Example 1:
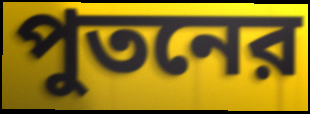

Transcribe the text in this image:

পুতনের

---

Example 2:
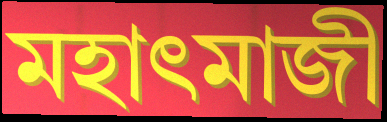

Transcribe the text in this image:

মহাৎমাজী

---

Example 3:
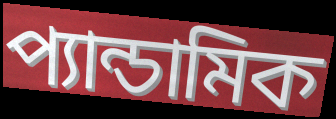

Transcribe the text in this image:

প্যান্ডামিক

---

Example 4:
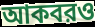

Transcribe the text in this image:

আকবরও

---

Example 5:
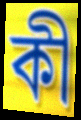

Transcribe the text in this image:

কী